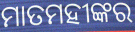
ମାତମହୀଙ୍କର